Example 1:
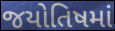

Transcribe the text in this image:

જયોતિષમાં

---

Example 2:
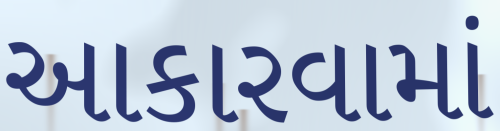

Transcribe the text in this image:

આકારવામાં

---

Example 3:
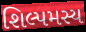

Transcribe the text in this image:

શિલ્પમસ્ય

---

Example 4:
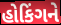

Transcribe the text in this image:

હોકિંગને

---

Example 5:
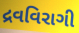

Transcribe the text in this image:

દ્રવવિરાગી